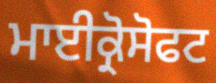
ਮਾਈਕ੍ਰੋਸੋਫਟ